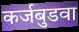
कर्जबुडवा